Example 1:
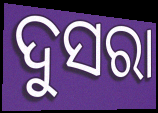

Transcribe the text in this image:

ଦୁସରା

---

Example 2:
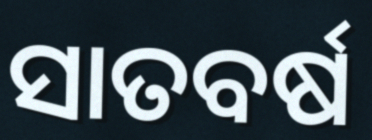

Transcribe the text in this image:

ସାତବର୍ଷ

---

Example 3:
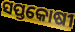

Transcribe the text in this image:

ସପ୍ତକୋଷୀ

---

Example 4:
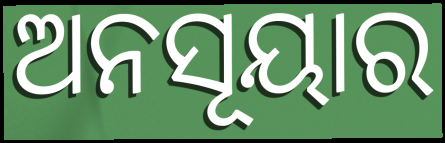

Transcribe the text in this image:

ଅନସୂୟାର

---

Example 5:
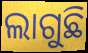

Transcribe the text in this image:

ଲାଗୁଛି